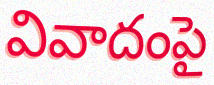
వివాదంపై